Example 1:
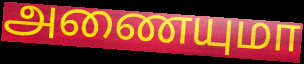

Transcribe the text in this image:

அணையுமா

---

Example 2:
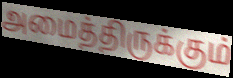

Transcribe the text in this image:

அமைத்திருக்கும்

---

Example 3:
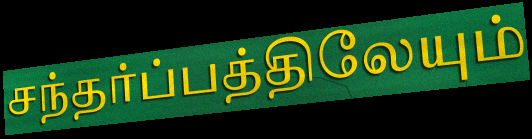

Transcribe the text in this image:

சந்தர்ப்பத்திலேயும்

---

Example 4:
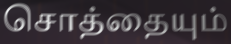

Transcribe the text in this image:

சொத்தையும்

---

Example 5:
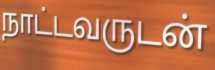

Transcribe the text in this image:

நாட்டவருடன்